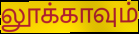
லூக்காவும்